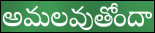
అమలవుతోందా